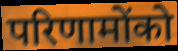
परिणामोंको